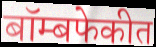
बॉम्बफेकीत